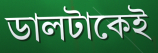
ডালটাকেই